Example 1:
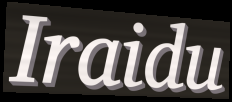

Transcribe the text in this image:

Iraidu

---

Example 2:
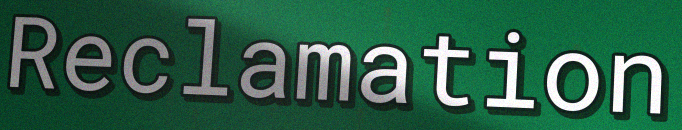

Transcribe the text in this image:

Reclamation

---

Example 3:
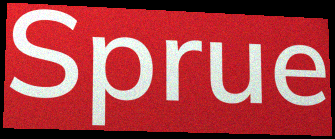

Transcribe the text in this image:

Sprue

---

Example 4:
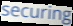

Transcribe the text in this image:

securing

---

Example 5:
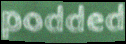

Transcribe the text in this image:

podded